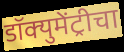
डॉक्युमेंट्रीचा